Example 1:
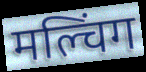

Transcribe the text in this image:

मल्चिंग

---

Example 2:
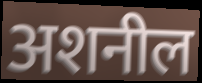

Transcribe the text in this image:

अशनील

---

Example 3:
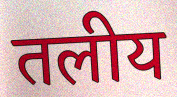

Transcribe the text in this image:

तलीय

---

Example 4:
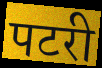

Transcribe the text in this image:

पटरी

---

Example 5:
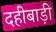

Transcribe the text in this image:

दहीबाड़ी